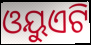
ଓୟୁଏଟି